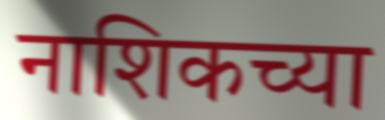
नाशिकच्या